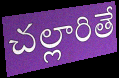
చల్లారితే